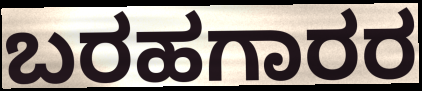
ಬರಹಗಾರರ